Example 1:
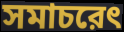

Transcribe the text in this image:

সমাচরেৎ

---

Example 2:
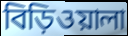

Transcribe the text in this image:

বিড়িওয়ালা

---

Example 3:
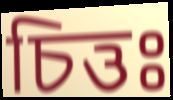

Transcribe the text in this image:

চিত্তঃ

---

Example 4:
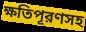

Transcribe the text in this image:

ক্ষতিপূরণসহ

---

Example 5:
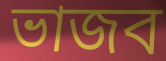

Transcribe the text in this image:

ভাজব